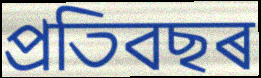
প্ৰতিবছৰ